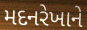
મદનરેખાને